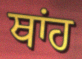
ਥਾਂਹ